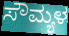
ಸೌಮ್ಯಳ